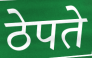
ठेपते